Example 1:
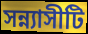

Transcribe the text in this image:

সন্ন্যাসীটি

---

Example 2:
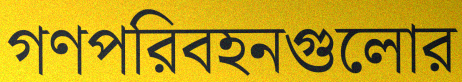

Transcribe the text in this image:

গণপরিবহনগুলোর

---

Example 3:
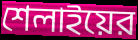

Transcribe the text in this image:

শেলাইয়ের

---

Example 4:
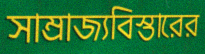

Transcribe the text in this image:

সাম্রাজ্যবিস্তারের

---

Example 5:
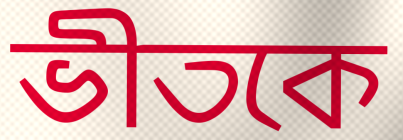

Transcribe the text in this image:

ভীতকে